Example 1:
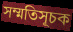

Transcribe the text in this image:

সম্মতিসূচক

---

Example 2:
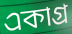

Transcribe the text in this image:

একাগ্র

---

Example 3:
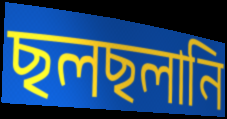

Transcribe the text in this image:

ছলছলানি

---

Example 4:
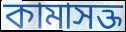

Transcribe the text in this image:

কামাসক্ত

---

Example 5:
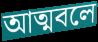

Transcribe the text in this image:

আত্মবলে